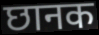
छानक